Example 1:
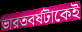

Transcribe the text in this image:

ভারতবর্ষটাকেই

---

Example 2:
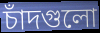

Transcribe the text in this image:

চাঁদগুলো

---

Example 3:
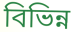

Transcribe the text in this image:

বিভিন্ন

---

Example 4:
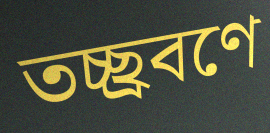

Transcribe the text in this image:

তচ্ছ্রবণে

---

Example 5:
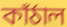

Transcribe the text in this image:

কাঁঠাল